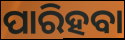
ପାରିହବା